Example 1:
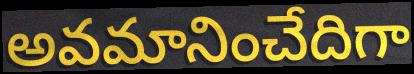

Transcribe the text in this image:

అవమానించేదిగా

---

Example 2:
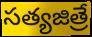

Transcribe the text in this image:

సత్యజిత్రే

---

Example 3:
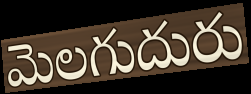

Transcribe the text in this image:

మెలగుదురు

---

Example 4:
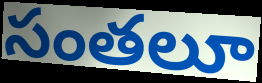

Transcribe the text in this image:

సంతలూ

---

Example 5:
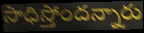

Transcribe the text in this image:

సాధిస్తోందన్నారు